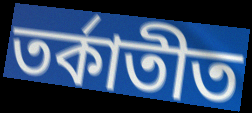
তর্কাতীত